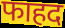
फाहद